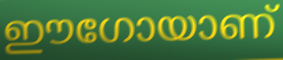
ഈഗോയാണ്